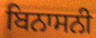
ਬਿਨਾਸਨੀ